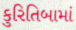
કુરિતિબામાં